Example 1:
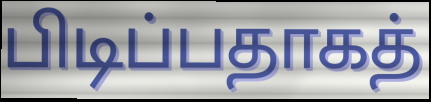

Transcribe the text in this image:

பிடிப்பதாகத்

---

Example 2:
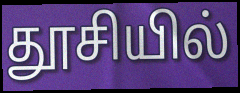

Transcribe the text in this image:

தூசியில்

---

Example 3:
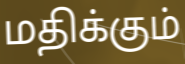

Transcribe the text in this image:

மதிக்கும்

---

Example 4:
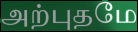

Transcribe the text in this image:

அற்புதமே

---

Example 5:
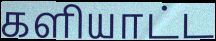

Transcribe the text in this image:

களியாட்ட